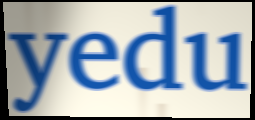
yedu